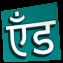
एँड